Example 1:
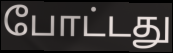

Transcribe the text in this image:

போட்டது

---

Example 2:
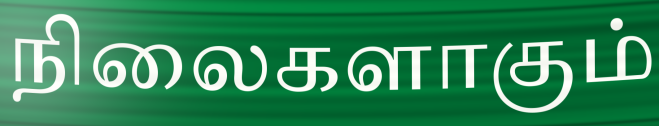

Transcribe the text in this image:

நிலைகளாகும்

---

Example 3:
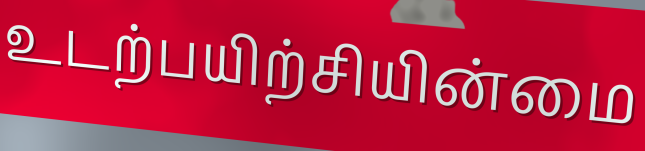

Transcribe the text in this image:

உடற்பயிற்சியின்மை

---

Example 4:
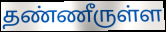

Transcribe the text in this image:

தண்ணீருள்ள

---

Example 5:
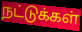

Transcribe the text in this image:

நட்டுக்கள்